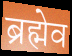
ब्रह्मेव